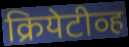
क्रियेटीव्ह